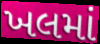
ખલમાં